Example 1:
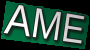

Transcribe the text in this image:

AME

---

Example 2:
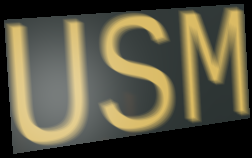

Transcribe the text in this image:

USM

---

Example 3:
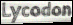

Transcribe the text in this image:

Lycodon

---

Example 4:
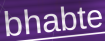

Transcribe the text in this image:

bhabte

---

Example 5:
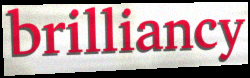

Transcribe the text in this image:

brilliancy